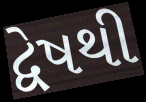
દ્વેષથી